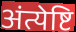
अंत्येष्टि